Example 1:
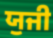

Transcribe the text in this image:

ਯੁਜੀ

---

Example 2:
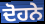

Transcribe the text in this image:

ਦੋਹਨੇ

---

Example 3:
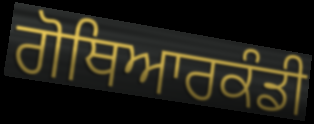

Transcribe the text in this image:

ਗੋਥਿਆਰਕੰਡੀ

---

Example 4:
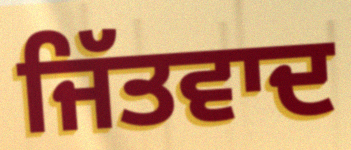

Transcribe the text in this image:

ਜਿੱਤਵਾਦ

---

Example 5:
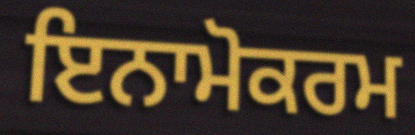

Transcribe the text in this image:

ਇਨਾਮੋਕਰਮ